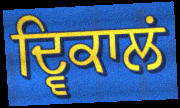
ਦ੍ਵਿਕਾਲਂ